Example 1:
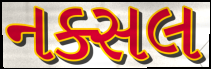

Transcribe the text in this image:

નક્સલ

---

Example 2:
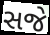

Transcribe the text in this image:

સજે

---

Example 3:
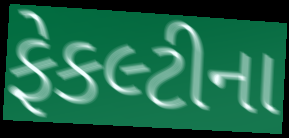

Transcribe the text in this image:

ફેકલ્ટીના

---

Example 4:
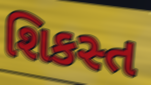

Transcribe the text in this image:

શિકસ્ત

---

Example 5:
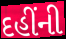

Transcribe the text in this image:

દહીંની